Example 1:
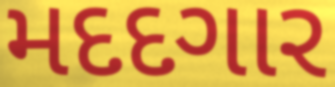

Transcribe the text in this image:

મદદગાર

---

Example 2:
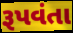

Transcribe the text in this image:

રૂપવંતા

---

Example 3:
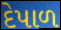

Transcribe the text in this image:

દેપાળ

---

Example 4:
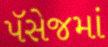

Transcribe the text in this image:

પૅસેજમાં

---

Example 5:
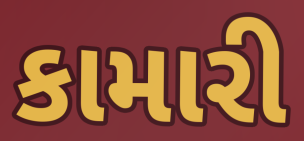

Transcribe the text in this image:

કામારી